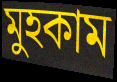
মুহকাম